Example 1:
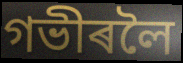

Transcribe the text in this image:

গভীৰলৈ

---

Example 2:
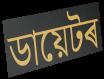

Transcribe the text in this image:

ডায়েটৰ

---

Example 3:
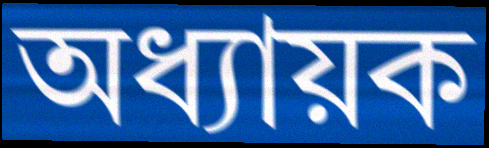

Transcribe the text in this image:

অধ্যায়ক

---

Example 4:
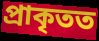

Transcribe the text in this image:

প্ৰাকৃতত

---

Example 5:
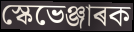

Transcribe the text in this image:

স্কেভেঞ্জাৰক